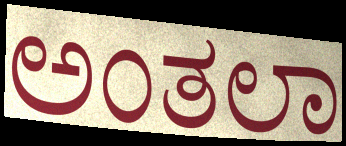
ಅಂತಲಾ